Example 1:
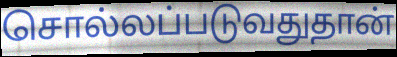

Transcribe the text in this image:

சொல்லப்படுவதுதான்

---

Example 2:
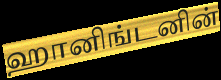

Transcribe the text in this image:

ஹானிங்டனின்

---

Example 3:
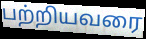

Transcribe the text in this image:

பற்றியவரை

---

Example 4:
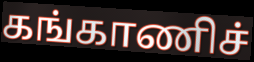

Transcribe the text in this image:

கங்காணிச்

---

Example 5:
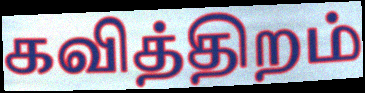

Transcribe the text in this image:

கவித்திறம்